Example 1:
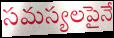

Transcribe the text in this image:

సమస్యలపైనే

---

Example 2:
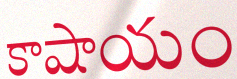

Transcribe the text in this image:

కాషాయం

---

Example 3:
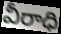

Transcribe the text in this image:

వీరాధి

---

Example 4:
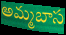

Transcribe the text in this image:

అమ్మబాస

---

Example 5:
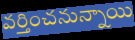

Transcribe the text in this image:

వర్తించనున్నాయి